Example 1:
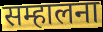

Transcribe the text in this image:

सम्हालना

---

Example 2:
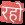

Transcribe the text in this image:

रहो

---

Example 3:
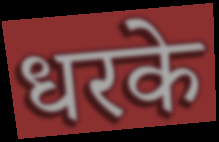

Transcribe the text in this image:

धरके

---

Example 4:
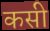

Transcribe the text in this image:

कसी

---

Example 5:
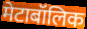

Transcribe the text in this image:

मेटाबॉलिक